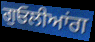
ਗੁਓਲੀਆਂਗ